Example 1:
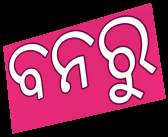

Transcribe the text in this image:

ବନରୁ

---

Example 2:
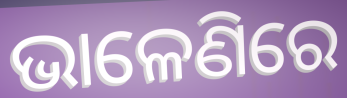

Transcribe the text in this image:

ଭାଳେଣିରେ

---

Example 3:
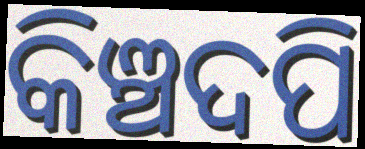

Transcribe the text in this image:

କିଞ୍ଚଦପି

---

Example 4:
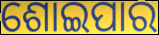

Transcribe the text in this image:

ଶୋଇପାର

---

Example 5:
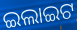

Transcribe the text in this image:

ଇଲାଇଟ